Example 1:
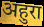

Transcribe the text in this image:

अहुरा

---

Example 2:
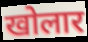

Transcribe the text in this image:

खोलार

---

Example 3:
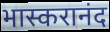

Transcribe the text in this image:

भास्करानंद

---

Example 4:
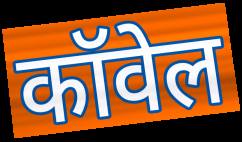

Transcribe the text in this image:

कॉवेल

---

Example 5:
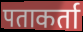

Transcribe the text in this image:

पताकर्ता